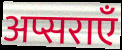
अप्सराएँ